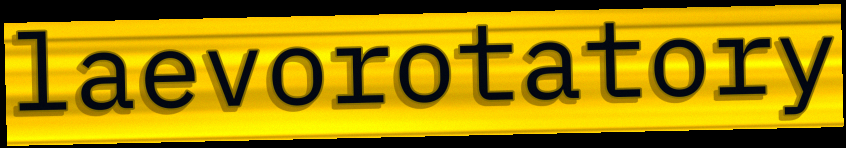
laevorotatory